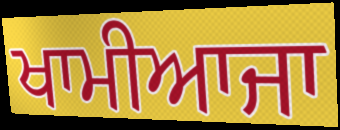
ਖਾਮੀਆਜਾ